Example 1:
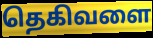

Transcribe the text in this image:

தெகிவளை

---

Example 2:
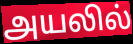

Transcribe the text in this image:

அயலில்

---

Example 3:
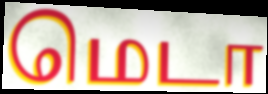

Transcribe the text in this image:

மெடா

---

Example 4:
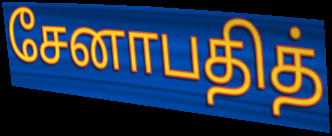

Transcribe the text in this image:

சேனாபதித்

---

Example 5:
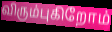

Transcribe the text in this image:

விரும்புகிறோம்